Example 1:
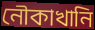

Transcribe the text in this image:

নৌকাখানি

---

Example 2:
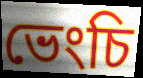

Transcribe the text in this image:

ভেংচি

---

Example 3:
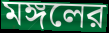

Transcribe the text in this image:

মঙ্গলের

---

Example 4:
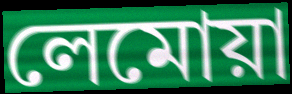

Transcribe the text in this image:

লেমোয়া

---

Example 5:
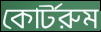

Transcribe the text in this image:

কোর্টরুম